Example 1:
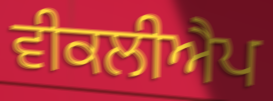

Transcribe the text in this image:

ਵੀਕਲੀਐਪ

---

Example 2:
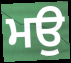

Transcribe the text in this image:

ਮਉ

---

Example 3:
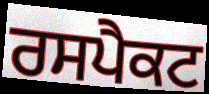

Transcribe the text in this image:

ਰਸਪੈਕਟ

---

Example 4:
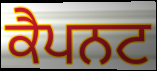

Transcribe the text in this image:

ਕੈਪਨਟ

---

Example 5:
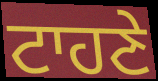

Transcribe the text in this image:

ਟਾਹਣੇ